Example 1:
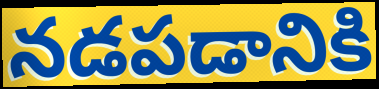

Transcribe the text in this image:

నడపడానికి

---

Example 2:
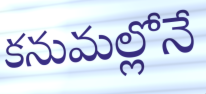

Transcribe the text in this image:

కనుమల్లోనే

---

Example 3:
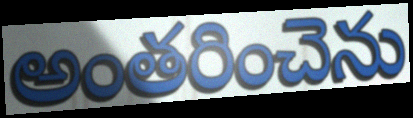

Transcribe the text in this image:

అంతరించెను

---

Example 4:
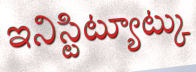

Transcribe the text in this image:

ఇనిస్టిట్యూట్కు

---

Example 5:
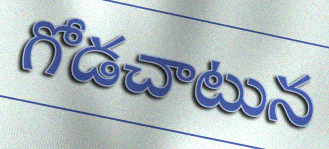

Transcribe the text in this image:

గోడచాటున